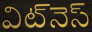
విట్‌నెస్